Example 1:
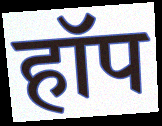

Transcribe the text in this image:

हॉप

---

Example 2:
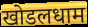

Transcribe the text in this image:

खोडलधाम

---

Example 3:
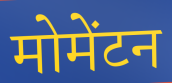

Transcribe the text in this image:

मोमेंटन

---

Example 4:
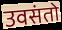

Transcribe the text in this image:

उवसंतो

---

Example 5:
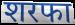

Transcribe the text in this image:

शरफा